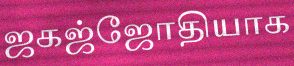
ஜகஜ்ஜோதியாக